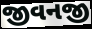
જીવનજી